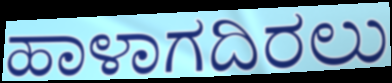
ಹಾಳಾಗದಿರಲು